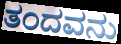
ತಂದವನು